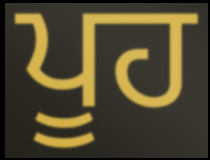
ਪੂਹ